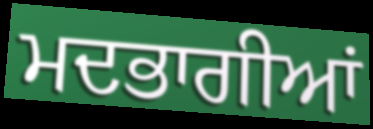
ਮਦਭਾਗੀਆਂ